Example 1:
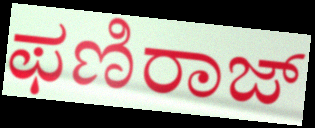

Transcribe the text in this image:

ಫಣಿರಾಜ್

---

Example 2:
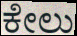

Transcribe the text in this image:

ಕೇಲು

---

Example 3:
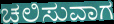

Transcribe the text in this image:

ಚಲಿಸುವಾಗ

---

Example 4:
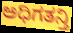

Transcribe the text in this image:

ಅಧಿಗತನ್ತಿ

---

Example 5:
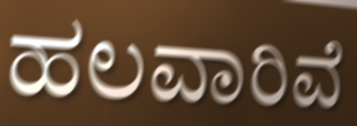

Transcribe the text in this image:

ಹಲವಾರಿವೆ